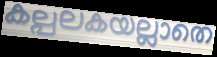
കല്പലകയല്ലാതെ